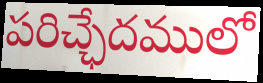
పరిచ్ఛేదములో